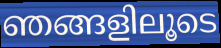
ഞങ്ങളിലൂടെ